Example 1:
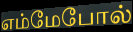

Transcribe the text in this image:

எம்மேபோல்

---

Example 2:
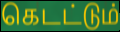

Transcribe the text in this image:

கெடட்டும்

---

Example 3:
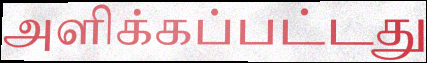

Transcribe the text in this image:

அளிக்கப்பட்டது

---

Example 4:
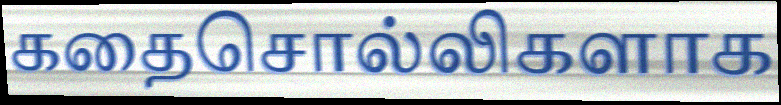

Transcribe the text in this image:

கதைசொல்லிகளாக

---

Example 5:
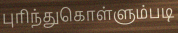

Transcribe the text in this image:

புரிந்துகொள்ளும்படி